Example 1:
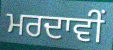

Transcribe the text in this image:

ਮਰਦਾਵੀਂ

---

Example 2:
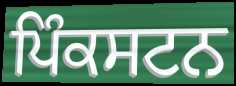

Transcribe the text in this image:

ਪਿੰਕਸਟਨ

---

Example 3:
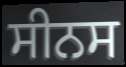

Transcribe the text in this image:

ਸੀਨਸ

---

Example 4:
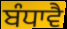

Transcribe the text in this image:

ਬੰਧਾਵੈ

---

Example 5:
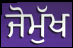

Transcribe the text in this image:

ਜੋਮੁੱਖ